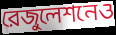
রেজুলেশনেও